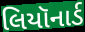
લિયૉનાર્ડ